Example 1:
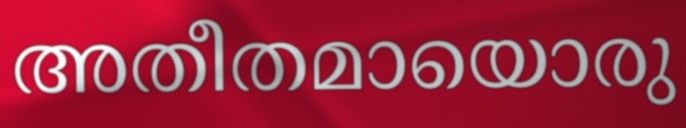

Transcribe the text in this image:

അതീതമായൊരു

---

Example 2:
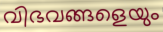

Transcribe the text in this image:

വിഭവങ്ങളെയും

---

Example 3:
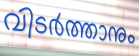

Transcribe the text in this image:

വിടർത്താനും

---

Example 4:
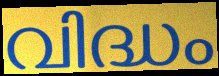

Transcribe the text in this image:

വിദ്ധം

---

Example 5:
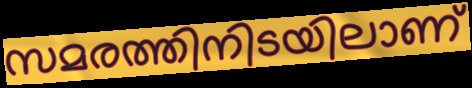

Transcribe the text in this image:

സമരത്തിനിടയിലാണ്